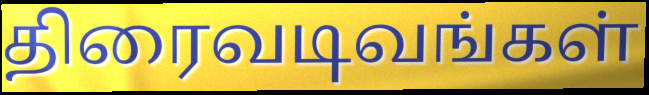
திரைவடிவங்கள்